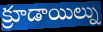
క్రూడాయిల్ను